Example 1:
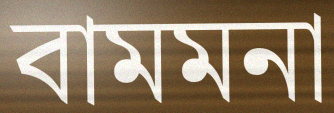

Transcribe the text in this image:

বামমনা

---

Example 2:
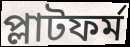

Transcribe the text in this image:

প্লাটফর্ম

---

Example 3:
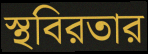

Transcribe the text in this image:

স্থবিরতার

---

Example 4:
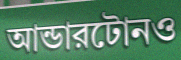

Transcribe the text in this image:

আন্ডারটোনও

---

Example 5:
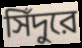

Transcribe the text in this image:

সিঁদুরে